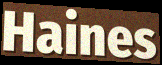
Haines